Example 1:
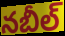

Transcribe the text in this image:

నబీల్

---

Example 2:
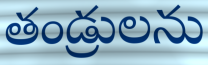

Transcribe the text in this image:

తండ్రులను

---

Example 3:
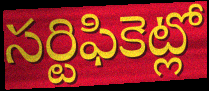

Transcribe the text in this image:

సర్టిఫికెట్లో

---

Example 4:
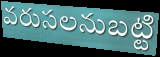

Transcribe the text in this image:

వరుసలనుబట్టి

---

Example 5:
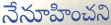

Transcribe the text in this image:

నేనూహించని